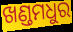
ଖଣ୍ଡମଧୁର